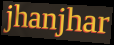
jhanjhar